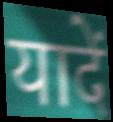
यादें